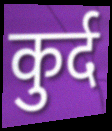
कुर्द